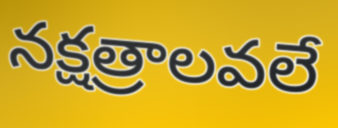
నక్షత్రాలవలే